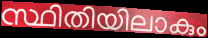
സ്ഥിതിയിലാകും